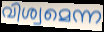
വിശ്വമെന്ന